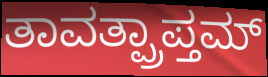
ತಾವತ್ಪ್ರಾಪ್ತಮ್